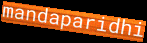
mandaparidhi